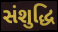
સંશુદ્ધિ